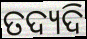
ତଦ୍ୟଦି